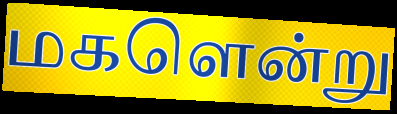
மகளென்று